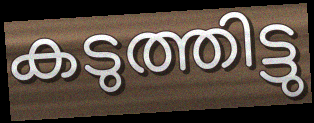
കടുത്തിട്ടു